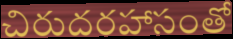
చిరుదరహాసంతో